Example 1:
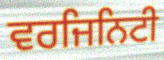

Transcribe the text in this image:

ਵਰਜਿਨਿਟੀ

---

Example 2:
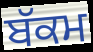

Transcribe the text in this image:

ਬੱਕਮ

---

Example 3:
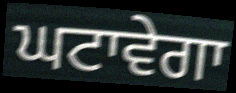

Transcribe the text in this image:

ਘਟਾਵੇਗਾ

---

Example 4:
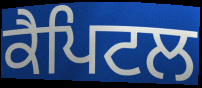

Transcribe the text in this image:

ਕੈਪਿਟਲ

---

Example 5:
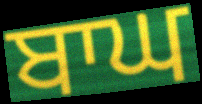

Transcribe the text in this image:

ਬਾਘ